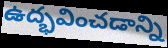
ఉద్భవించడాన్ని